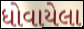
ધોવાયેલા